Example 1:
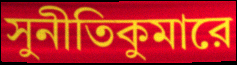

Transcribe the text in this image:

সুনীতিকুমারে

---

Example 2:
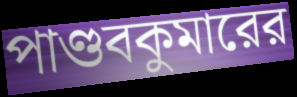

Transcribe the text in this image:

পাণ্ডবকুমারের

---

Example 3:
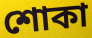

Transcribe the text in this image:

শোকা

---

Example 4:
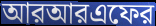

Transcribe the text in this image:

আরআরএফের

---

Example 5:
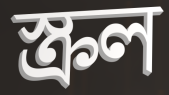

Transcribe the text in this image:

স্ক্রল